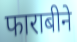
फाराबीने